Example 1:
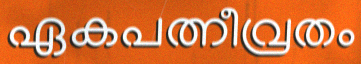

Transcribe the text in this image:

ഏകപത്നീവ്രതം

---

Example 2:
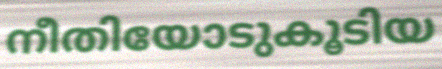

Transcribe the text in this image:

നീതിയോടുകൂടിയ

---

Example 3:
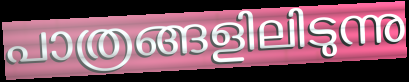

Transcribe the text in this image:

പാത്രങ്ങളിലിടുന്നു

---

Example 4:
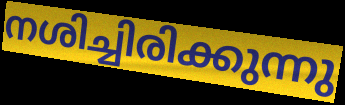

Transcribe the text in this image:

നശിച്ചിരിക്കുന്നു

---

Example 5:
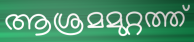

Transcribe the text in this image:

ആശ്രമമുറ്റത്ത്